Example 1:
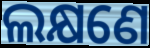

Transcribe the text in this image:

ଲକ୍ଷଣେ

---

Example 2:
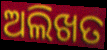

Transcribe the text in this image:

ଅଲିଖତ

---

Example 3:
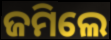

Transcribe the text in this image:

ଜମିଲେ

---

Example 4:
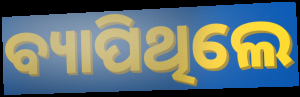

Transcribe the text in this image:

ବ୍ୟାପିଥିଲେ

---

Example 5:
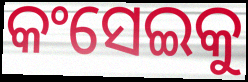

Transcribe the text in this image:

କଂସେଇକୁ